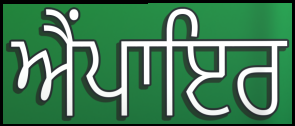
ਐਂਪਾਇਰ